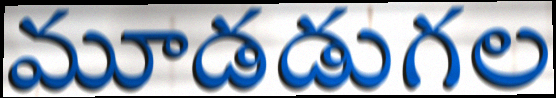
మూడడుగల